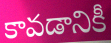
కావడానికీ